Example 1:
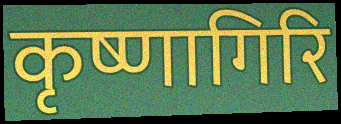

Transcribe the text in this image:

कृष्णागिरि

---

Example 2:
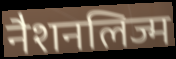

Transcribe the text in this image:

नैशनलिज्म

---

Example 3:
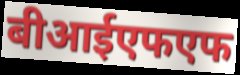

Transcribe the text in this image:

बीआईएफएफ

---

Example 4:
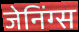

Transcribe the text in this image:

जेनिंग्स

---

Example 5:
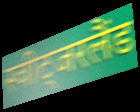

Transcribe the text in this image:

स्वीट्जरलैंड